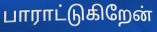
பாராட்டுகிறேன்